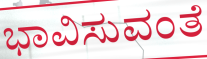
ಭಾವಿಸುವಂತೆ